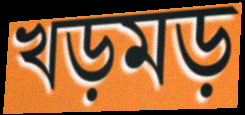
খড়মড়